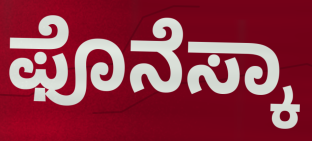
ಫೊನೆಸ್ಕಾ